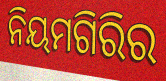
ନିୟମଗିରିର